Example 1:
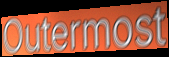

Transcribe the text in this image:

Outermost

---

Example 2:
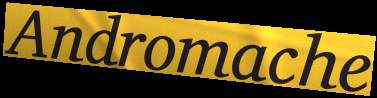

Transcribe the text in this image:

Andromache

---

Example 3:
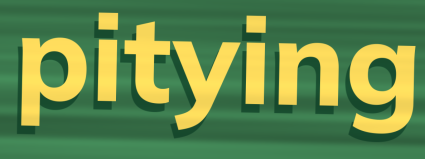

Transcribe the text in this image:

pitying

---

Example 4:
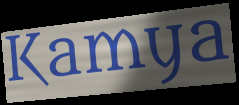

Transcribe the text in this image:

Kamya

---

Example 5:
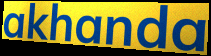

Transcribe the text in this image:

akhanda